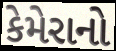
કેમેરાનો